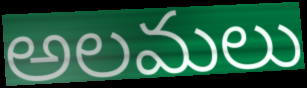
అలమలు